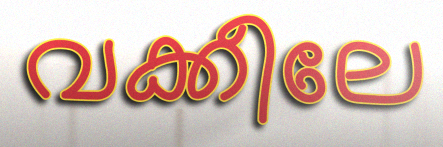
വക്കീലേ